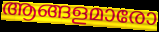
ആങ്ങളമാരോ